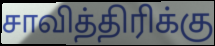
சாவித்திரிக்கு